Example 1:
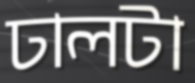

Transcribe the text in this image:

ঢালটা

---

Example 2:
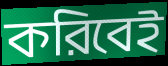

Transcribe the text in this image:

করিবেই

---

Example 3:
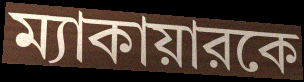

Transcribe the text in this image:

ম্যাকায়ারকে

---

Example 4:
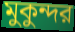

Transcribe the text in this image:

মুকুন্দর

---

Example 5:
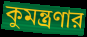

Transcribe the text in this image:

কুমন্ত্রণার